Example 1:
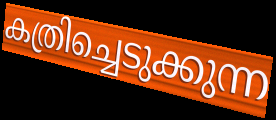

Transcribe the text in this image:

കത്രിച്ചെടുക്കുന്ന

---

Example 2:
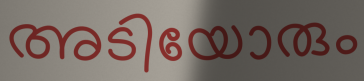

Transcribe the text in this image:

അടിയോരും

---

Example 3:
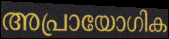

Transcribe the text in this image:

അപ്രായോഗിക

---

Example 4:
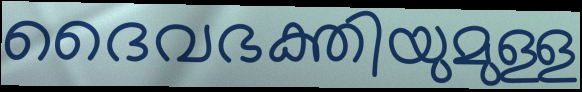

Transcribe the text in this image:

ദൈവഭക്തിയുമുള്ള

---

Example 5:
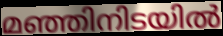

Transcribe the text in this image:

മഞ്ഞിനിടയിൽ